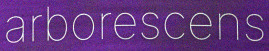
arborescens